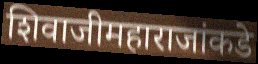
शिवाजीमहाराजांकडे